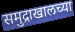
समुद्राखालच्या